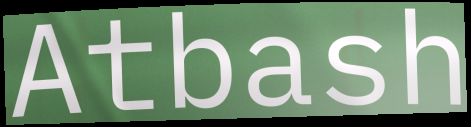
Atbash